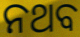
ନଥବ